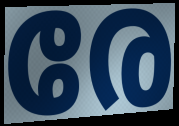
രേ